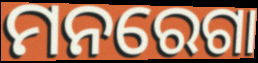
ମନରେଗା